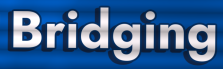
Bridging